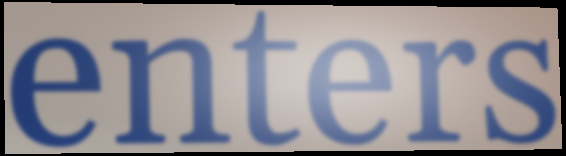
enters